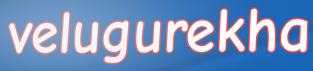
velugurekha